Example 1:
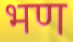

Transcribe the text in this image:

भण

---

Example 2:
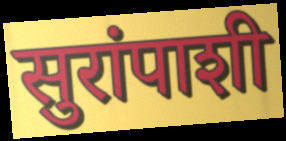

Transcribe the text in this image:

सुरांपाशी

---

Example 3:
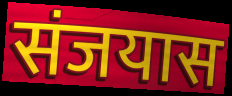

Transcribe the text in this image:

संजयास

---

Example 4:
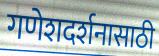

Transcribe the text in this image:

गणेशदर्शनासाठी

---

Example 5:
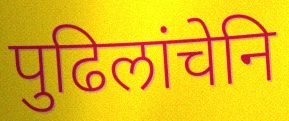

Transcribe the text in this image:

पुढिलांचेनि